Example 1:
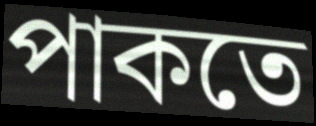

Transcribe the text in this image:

পাকতে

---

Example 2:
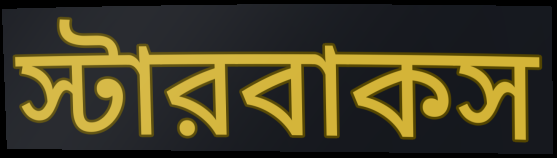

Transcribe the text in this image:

স্টারবাকস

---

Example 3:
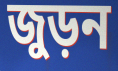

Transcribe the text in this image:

জুড়ন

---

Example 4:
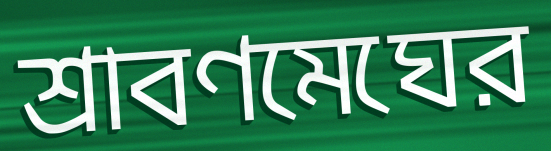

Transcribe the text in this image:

শ্রাবণমেঘের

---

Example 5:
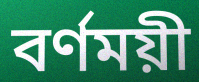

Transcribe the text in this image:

বর্ণময়ী